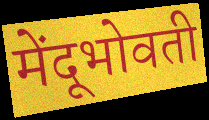
मेंदूभोवती